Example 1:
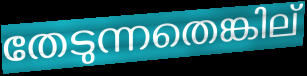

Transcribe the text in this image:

തേടുന്നതെങ്കില്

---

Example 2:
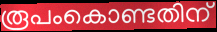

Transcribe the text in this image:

രൂപംകൊണ്ടതിന്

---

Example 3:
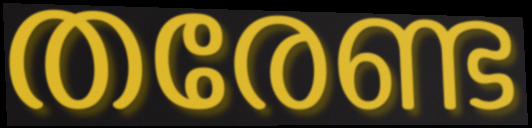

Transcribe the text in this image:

തരേണ്ട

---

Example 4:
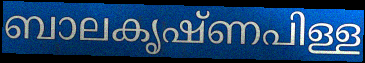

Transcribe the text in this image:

ബാലകൃഷ്ണപിള്ള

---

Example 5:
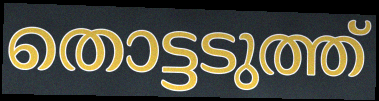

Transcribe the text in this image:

തൊട്ടടുത്ത്